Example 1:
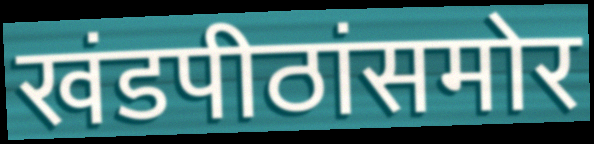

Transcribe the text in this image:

खंडपीठांसमोर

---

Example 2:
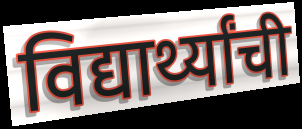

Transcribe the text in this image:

विद्यार्थ्यांची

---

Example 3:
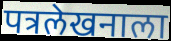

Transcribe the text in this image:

पत्रलेखनाला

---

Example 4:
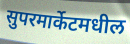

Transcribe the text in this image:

सुपरमार्केटमधील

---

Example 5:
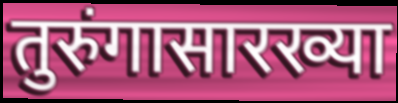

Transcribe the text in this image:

तुरुंगासारख्या